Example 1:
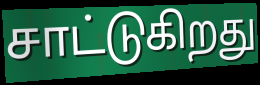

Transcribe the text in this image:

சாட்டுகிறது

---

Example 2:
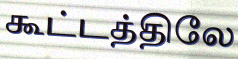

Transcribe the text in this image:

கூட்டத்திலே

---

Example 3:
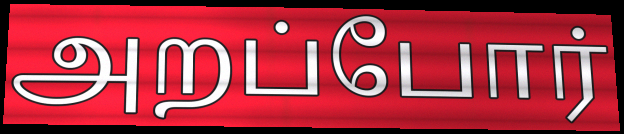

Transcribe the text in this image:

அறப்போர்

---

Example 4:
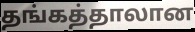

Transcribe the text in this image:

தங்கத்தாலான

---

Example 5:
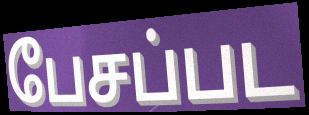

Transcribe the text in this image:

பேசப்பட